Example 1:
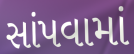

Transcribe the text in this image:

સાંપવામાં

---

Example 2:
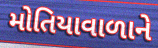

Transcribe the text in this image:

મોતિયાવાળાને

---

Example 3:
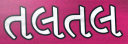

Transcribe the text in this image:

તલતલ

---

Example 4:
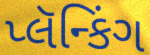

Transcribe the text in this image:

પ્લૅન્કિંગ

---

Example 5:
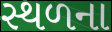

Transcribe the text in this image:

સ્થળના